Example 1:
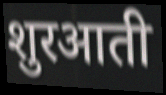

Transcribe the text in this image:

शुरआती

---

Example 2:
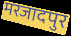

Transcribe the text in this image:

मरजादपुर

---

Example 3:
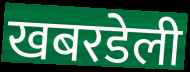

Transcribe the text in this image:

खबरडेली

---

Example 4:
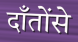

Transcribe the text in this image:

दाँतोंसे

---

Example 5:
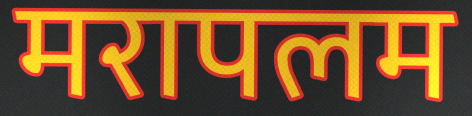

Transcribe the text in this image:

मरापलम